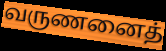
வருணனைத்